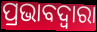
ପ୍ରଭାବଦ୍ୱାରା